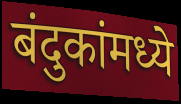
बंदुकांमध्ये